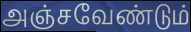
அஞ்சவேண்டும்